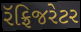
રૅફ્રિજરેટર